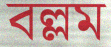
বল্লম